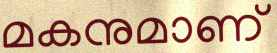
മകനുമാണ്